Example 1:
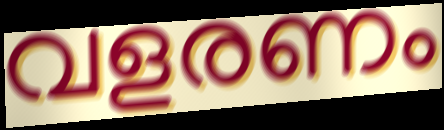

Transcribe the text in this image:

വളരണം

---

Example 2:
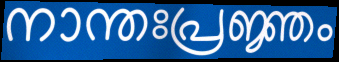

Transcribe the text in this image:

നാന്തഃപ്രജ്ഞം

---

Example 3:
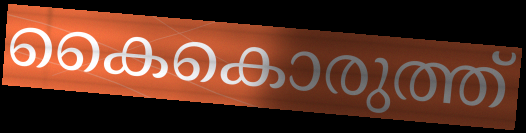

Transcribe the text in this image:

കൈകൊരുത്ത്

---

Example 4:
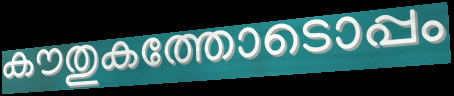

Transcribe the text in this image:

കൗതുകത്തോടൊപ്പം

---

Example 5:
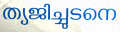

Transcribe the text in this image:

ത്യജിച്ചുടനെ